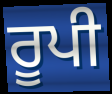
ਰੂਪੀ